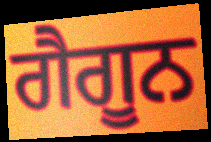
ਗੈਗੂਨ